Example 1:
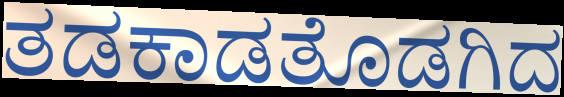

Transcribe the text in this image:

ತಡಕಾಡತೊಡಗಿದ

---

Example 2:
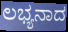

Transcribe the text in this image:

ಲಭ್ಯನಾದ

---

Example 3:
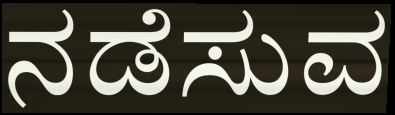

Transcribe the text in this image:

ನಡೆಸುವ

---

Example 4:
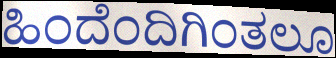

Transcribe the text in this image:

ಹಿಂದೆಂದಿಗಿಂತಲೂ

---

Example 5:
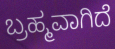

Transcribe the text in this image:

ಬ್ರಹ್ಮವಾಗಿದೆ